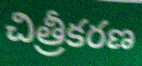
చిత్రీకరణ